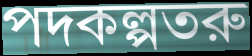
পদকল্পতরু